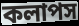
কলাপস